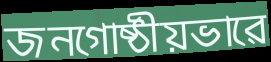
জনগোষ্ঠীয়ভাৱে